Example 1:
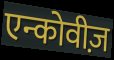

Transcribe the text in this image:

एन्कोवीज़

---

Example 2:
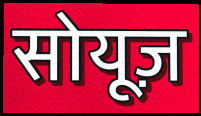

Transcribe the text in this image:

सोयूज़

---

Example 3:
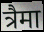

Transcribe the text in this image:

त्रैमा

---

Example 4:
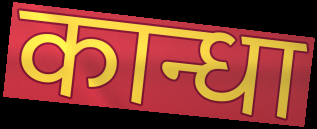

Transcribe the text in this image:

कान्धा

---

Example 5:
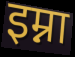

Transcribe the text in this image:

इम्ना